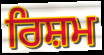
ਰਿਸ਼ਮ